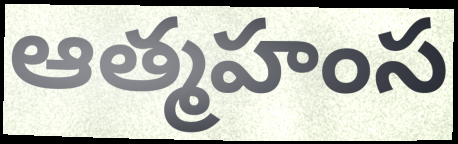
ఆత్మహంస